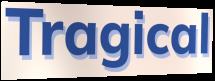
Tragical